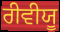
ਰੀਵੀਯੂ